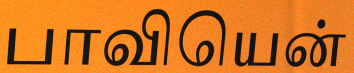
பாவியென்